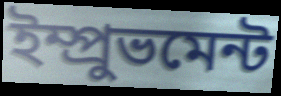
ইম্প্রুভমেন্ট